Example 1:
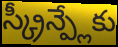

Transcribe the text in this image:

స్క్రీన్ప్లేకు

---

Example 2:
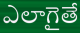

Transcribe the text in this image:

ఎలాగైతే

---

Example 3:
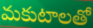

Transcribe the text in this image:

మకుటాలతో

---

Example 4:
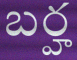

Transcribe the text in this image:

బర్హ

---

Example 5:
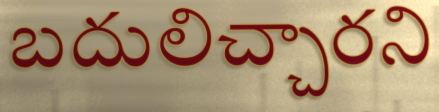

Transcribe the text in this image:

బదులిచ్చారని